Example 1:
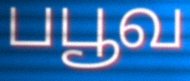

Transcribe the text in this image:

பபூவ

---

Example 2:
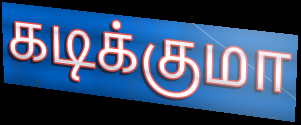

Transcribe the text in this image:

கடிக்குமா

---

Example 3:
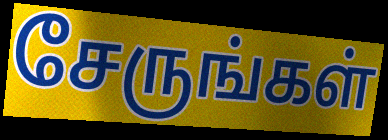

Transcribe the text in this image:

சேருங்கள்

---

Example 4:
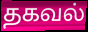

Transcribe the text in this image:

தகவல்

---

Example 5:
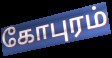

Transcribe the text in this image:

கோபுரம்